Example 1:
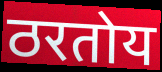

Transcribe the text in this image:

ठरतोय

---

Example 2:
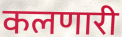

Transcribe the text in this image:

कलणारी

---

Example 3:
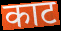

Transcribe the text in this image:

काट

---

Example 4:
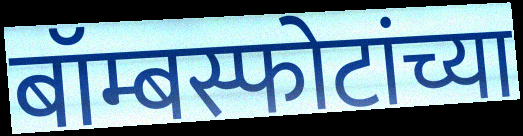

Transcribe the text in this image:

बॉम्बस्फोटांच्या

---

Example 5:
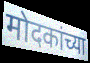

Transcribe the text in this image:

मोदकांच्या